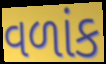
વળાંક